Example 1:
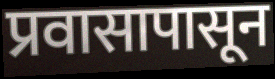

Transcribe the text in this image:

प्रवासापासून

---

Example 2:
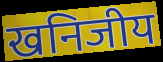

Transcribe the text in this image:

खनिजीय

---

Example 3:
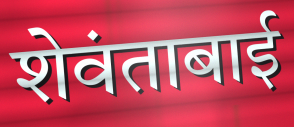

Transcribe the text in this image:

शेवंताबाई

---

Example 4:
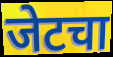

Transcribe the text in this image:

जेटचा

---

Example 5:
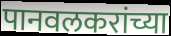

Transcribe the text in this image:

पानवलकरांच्या